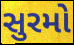
સુરમો